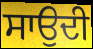
ਸਾਉਦੀ